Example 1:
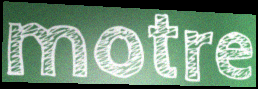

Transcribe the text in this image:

motre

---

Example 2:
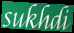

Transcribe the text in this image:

sukhdi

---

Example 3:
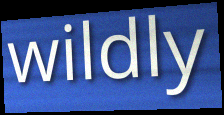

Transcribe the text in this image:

wildly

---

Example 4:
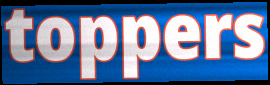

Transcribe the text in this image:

toppers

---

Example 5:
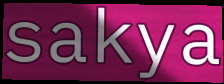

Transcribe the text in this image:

sakya